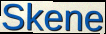
Skene